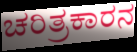
ಚರಿತ್ರಕಾರನ